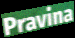
Pravina